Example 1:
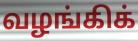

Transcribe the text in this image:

வழங்கிக்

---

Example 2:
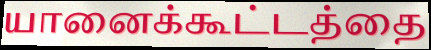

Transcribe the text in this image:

யானைக்கூட்டத்தை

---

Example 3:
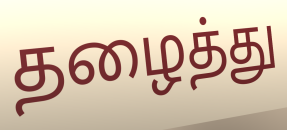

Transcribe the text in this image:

தழைத்து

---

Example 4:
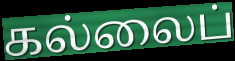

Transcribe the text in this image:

கல்லைப்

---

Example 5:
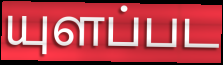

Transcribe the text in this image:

யுளப்பட